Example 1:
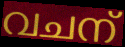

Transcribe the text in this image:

വചന്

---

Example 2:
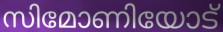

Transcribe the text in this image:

സിമോണിയോട്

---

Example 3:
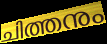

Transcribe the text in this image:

ചിത്തനും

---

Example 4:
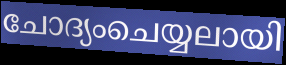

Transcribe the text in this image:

ചോദ്യംചെയ്യലായി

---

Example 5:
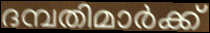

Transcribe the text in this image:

ദമ്പതിമാർക്ക്